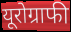
यूरोग्राफी